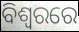
ବିଶ୍ବରରେ